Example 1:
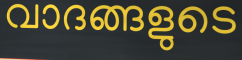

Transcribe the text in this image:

വാദങ്ങളുടെ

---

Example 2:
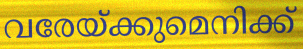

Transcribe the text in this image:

വരേയ്ക്കുമെനിക്ക്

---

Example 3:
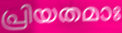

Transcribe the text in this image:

പ്രിയതമാഃ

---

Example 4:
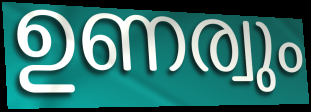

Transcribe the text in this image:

ഉണര്വും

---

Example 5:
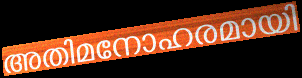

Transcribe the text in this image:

അതിമനോഹരമായി